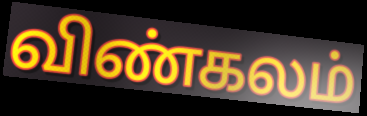
விண்கலம்